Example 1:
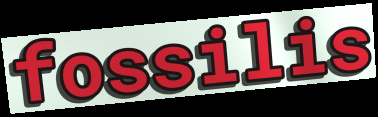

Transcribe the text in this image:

fossilis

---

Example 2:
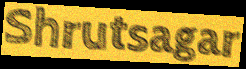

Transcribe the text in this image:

Shrutsagar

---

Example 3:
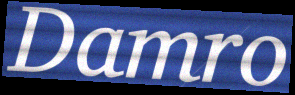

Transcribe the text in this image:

Damro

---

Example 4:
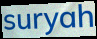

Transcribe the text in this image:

suryah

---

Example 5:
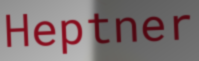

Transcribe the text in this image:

Heptner